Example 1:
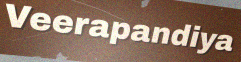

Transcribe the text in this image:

Veerapandiya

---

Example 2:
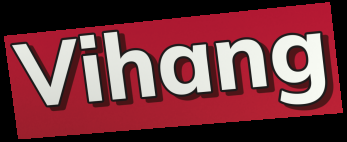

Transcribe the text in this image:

Vihang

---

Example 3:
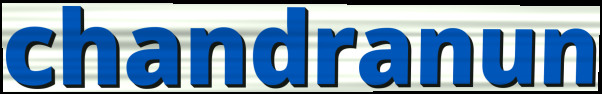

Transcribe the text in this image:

chandranun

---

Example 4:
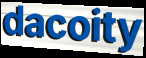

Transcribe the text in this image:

dacoity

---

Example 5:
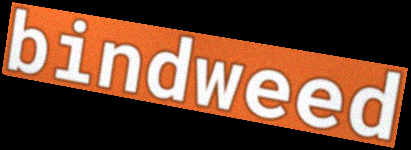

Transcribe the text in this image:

bindweed